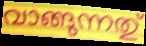
വാങ്ങുന്നതു്